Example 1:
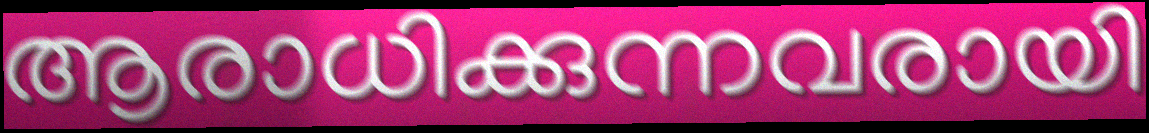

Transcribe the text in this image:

ആരാധിക്കുന്നവരായി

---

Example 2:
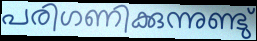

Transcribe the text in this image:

പരിഗണിക്കുന്നുണ്ടു്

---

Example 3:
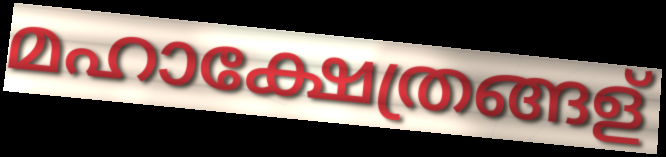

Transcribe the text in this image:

മഹാക്ഷേത്രങ്ങള്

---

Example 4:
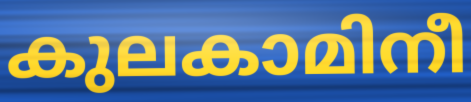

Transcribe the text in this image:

കുലകാമിനീ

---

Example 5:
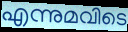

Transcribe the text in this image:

എന്നുമവിടെ